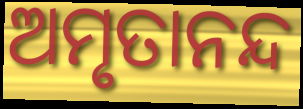
ଅମୃତାନନ୍ଦ